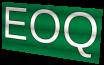
EOQ